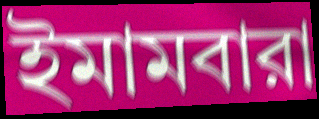
ইমামবারা